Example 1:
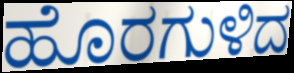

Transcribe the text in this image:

ಹೊರಗುಳಿದ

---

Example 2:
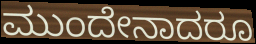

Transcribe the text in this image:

ಮುಂದೇನಾದರೂ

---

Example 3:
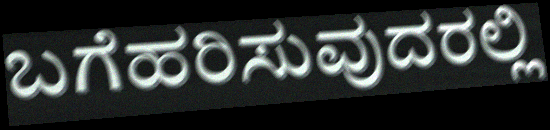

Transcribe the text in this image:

ಬಗೆಹರಿಸುವುದರಲ್ಲಿ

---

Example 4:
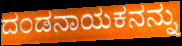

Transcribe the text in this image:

ದಂಡನಾಯಕನನ್ನು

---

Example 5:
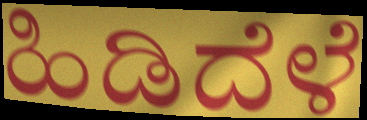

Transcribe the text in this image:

ಹಿಡಿದೆಳೆ